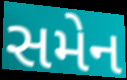
સમેન